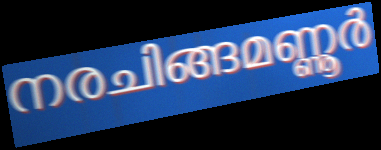
നരചിങ്ങമണ്ണൂർ